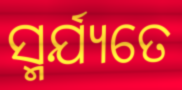
ସ୍ମର୍ଯ୍ୟତେ